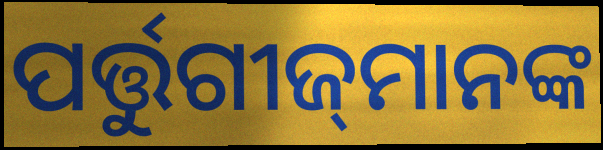
ପର୍ତ୍ତୁଗୀଜ୍‌ମାନଙ୍କ